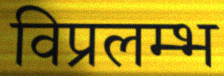
विप्रलम्भ